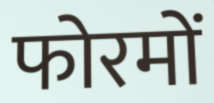
फोरमों